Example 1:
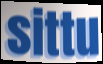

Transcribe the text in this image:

sittu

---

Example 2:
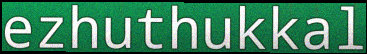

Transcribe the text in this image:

ezhuthukkal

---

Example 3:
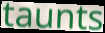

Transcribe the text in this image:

taunts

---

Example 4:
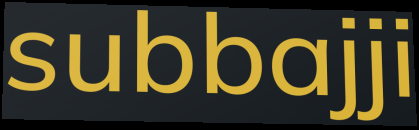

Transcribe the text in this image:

subbajji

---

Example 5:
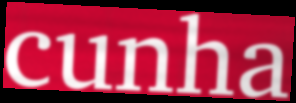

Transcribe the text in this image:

cunha